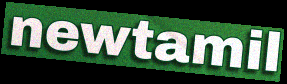
newtamil